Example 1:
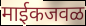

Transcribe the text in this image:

माईकजवळ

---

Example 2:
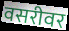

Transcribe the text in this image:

वसरीवर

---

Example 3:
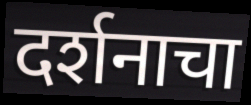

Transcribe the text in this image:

दर्शनाचा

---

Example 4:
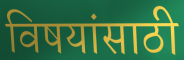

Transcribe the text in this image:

विषयांसाठी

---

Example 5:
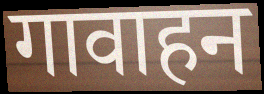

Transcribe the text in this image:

गावाहन